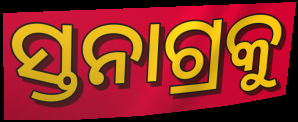
ସ୍ତନାଗ୍ରକୁ